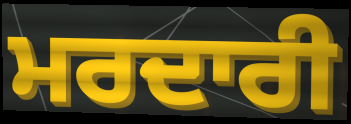
ਮਰਦਾਰੀ